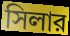
সিলার